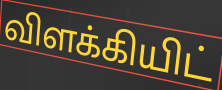
விளக்கியிட்